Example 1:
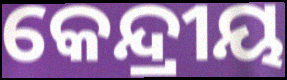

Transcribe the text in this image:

କେନ୍ଦ୍ରୀୟ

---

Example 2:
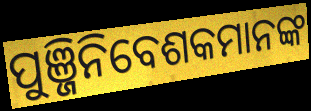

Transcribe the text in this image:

ପୁଞ୍ଜିନିବେଶକମାନଙ୍କ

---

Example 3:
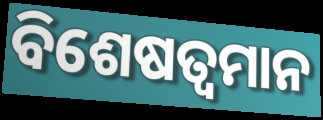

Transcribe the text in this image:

ବିଶେଷତ୍ଵମାନ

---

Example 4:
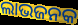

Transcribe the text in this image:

ଲାଭଜନକ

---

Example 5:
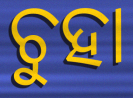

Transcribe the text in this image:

ଚୁହା